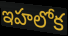
ఇహలోక